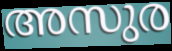
അസുര